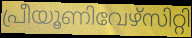
പ്രീയൂണിവേഴ്സിറ്റി